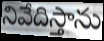
నివేదిస్తాను